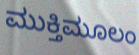
ಮುಕ್ತಿಮೂಲಂ